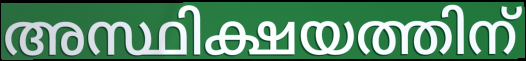
അസ്ഥിക്ഷയത്തിന്